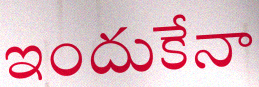
ఇందుకేనా